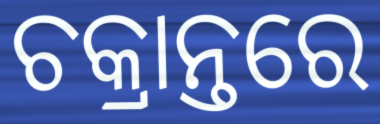
ଚକ୍ରାନ୍ତରେ